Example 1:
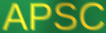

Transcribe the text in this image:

APSC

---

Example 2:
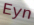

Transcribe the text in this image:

Eyn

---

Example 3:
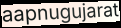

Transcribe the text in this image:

aapnugujarat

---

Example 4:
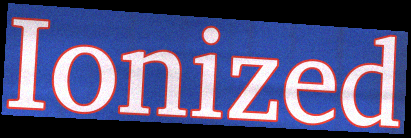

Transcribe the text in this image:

Ionized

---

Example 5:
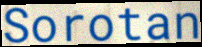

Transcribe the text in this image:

Sorotan